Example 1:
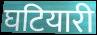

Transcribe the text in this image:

घटियारी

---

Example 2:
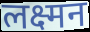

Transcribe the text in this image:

लक्ष्मन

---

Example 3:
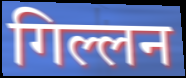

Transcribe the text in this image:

गिल्लन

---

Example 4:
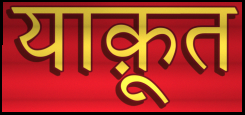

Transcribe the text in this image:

याक़ूत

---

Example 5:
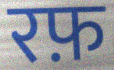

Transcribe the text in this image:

रफ़